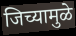
जिच्यामुळे